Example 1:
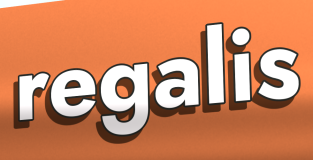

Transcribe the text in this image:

regalis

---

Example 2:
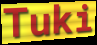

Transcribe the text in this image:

Tuki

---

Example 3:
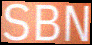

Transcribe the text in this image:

SBN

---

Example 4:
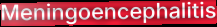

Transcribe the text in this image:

Meningoencephalitis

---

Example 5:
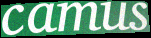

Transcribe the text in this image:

camus